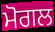
ਮੋਗਲ